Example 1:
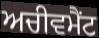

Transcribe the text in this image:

ਅਚੀਵਮੈਂਟ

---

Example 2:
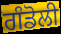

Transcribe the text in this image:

ਗੰਡੋਲੀ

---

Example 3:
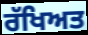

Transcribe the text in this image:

ਰੱਖਿਅਤ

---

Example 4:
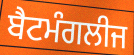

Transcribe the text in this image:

ਬੈਟਮੰਗਲੀਜ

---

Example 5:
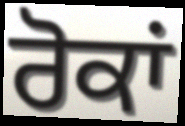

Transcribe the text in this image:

ਰੋਕਾਂ